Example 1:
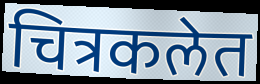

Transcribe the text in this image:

चित्रकलेत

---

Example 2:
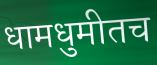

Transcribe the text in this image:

धामधुमीतच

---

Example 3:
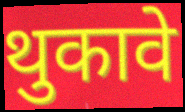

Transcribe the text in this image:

थुकावे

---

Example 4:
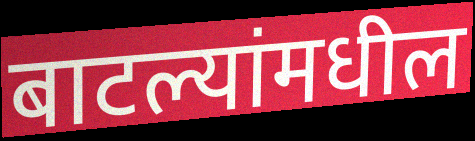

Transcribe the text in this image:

बाटल्यांमधील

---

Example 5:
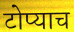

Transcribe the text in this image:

टोप्याच